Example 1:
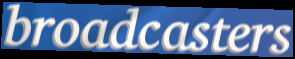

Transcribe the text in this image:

broadcasters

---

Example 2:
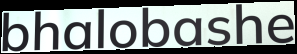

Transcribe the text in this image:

bhalobashe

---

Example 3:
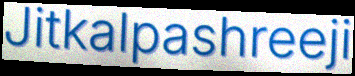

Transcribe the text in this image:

Jitkalpashreeji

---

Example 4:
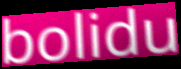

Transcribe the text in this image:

bolidu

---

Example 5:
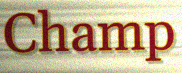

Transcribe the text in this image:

Champ